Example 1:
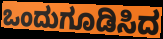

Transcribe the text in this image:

ಒಂದುಗೂಡಿಸಿದ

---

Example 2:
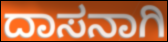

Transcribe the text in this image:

ದಾಸನಾಗಿ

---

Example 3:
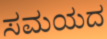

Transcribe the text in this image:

ಸಮಯದ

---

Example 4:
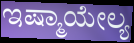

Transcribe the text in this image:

ಇಷ್ಮಾಯೇಲ್ಯ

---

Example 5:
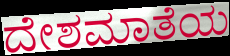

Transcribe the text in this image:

ದೇಶಮಾತೆಯ